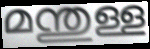
മന്തുള്ള